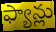
ఫ్యాన్లు